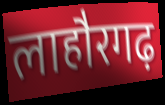
लाहौरगढ़